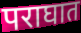
पराघात